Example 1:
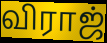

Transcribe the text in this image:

விராஜ்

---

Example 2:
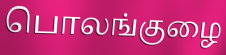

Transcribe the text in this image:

பொலங்குழை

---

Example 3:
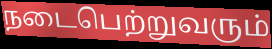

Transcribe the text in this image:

நடைபெற்றுவரும்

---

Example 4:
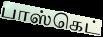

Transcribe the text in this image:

பாஸ்கெட்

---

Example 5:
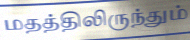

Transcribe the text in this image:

மதத்திலிருந்தும்